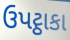
ઉપટ્ઠાકા